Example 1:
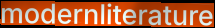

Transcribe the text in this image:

modernliterature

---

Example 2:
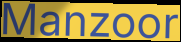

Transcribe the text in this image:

Manzoor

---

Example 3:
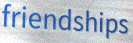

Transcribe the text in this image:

friendships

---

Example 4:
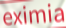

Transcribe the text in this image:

eximia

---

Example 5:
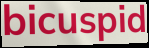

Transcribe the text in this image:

bicuspid